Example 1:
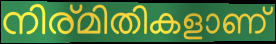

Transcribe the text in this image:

നിര്മിതികളാണ്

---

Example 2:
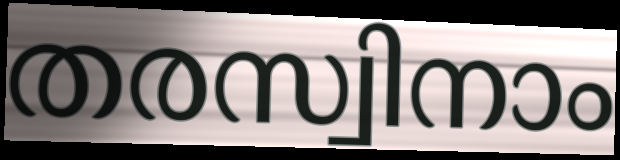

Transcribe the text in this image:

തരസ്വിനാം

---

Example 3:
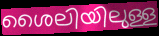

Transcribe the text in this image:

ശൈലിയിലുള്ള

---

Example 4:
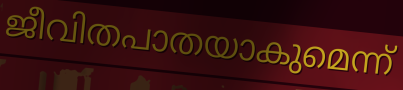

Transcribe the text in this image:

ജീവിതപാതയാകുമെന്ന്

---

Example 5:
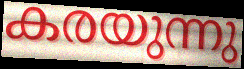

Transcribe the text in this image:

കരയുന്നു